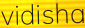
vidisha